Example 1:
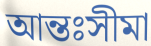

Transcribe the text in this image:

আন্তঃসীমা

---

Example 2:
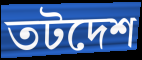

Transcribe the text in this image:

তটদেশ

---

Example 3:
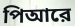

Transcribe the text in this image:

পিআরে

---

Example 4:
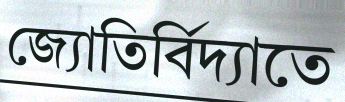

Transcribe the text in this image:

জ্যোতির্বিদ্যাতে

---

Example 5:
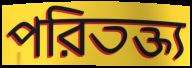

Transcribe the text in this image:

পরিতক্ত্য